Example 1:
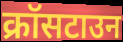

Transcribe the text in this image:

क्रॉसटाउन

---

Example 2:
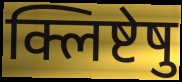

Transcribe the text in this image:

क्लिष्टेषु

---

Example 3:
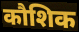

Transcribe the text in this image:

कौशिक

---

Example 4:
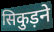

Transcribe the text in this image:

सिकुड़ने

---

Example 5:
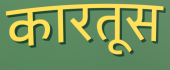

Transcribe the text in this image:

कारतूस